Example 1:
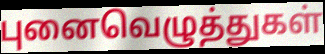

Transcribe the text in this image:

புனைவெழுத்துகள்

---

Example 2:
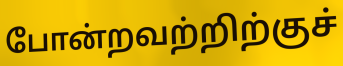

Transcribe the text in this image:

போன்றவற்றிற்குச்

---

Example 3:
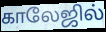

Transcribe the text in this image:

காலேஜில்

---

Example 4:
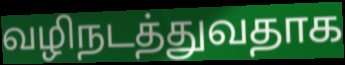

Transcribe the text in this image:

வழிநடத்துவதாக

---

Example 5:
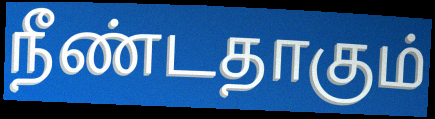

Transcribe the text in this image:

நீண்டதாகும்